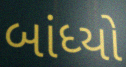
બાંધ્યો